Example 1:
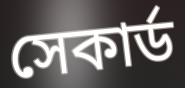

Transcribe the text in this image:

সেকার্ড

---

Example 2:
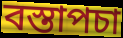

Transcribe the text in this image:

বস্তাপচা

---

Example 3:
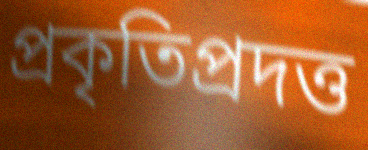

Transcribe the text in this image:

প্রকৃতিপ্রদত্ত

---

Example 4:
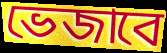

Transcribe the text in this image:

ভেজাবে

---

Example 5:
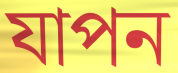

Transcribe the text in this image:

যাপন